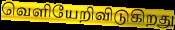
வெளியேறிவிடுகிறது